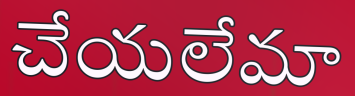
చేయలేమా